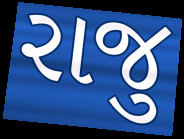
રાજુ